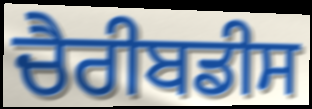
ਚੈਰੀਬਡੀਸ